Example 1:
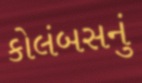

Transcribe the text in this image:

કોલંબસનું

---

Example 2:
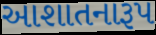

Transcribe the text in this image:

આશાતનારૂપ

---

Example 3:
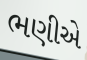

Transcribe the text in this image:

ભણીએ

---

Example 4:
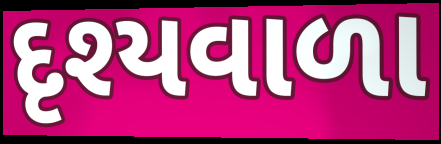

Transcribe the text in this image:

દૃશ્યવાળા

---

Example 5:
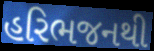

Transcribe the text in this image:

હરિભજનથી